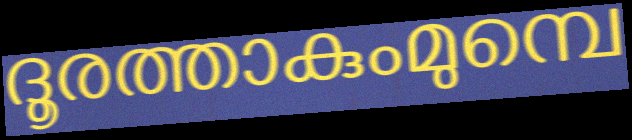
ദൂരത്താകുംമുമ്പെ